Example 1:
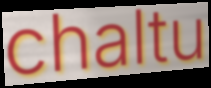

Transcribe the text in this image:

chaltu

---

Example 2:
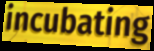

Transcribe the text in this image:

incubating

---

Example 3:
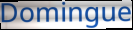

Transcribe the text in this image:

Domingue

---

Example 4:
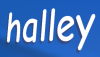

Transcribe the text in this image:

halley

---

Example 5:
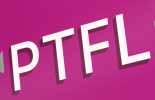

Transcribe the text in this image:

PTFL